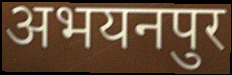
अभयनपुर